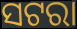
ସଟରା